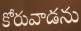
కోరువాడను